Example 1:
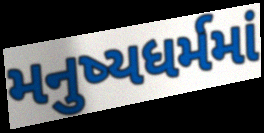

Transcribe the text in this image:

મનુષ્યધર્મમાં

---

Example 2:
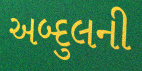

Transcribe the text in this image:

અબ્દુલની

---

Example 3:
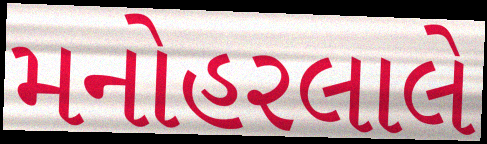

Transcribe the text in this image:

મનોહરલાલે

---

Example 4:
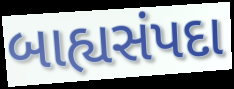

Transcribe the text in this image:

બાહ્યસંપદા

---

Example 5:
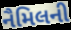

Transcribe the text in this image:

નૈમિલની